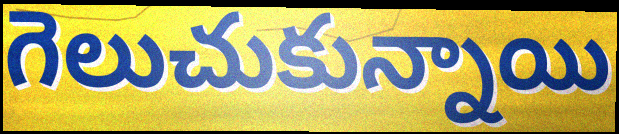
గెలుచుకున్నాయి